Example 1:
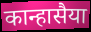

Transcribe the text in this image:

कान्हासैया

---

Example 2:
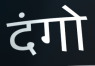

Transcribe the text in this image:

दंगो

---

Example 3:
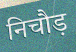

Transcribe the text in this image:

निचौड़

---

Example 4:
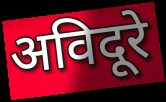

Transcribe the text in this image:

अविदूरे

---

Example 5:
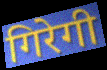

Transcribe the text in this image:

गिरेगी